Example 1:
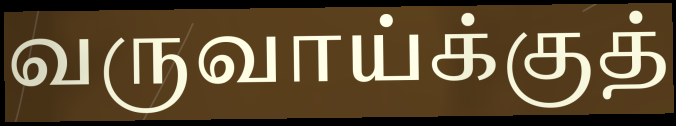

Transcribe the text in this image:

வருவாய்க்குத்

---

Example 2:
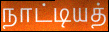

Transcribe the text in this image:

நாட்டியத்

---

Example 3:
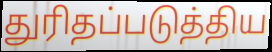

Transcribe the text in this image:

துரிதப்படுத்திய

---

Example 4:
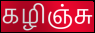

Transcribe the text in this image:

கழிஞ்சு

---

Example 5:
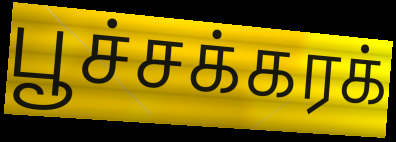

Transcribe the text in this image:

பூச்சக்கரக்